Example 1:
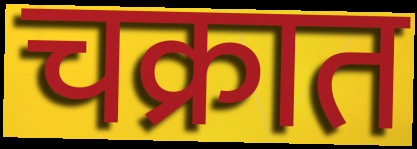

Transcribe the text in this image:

चक्रात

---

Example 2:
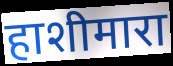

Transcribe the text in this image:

हाशीमारा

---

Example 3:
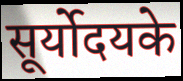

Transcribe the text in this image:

सूर्योदयके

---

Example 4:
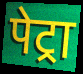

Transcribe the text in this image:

पेट्रा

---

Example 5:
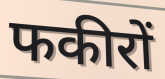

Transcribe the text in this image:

फकीरों